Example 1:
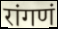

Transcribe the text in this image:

रांगणं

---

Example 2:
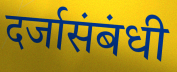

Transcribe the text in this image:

दर्जासंबंधी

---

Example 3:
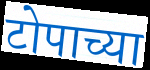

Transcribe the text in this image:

टोपाच्या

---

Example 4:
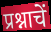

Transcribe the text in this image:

प्रश्नाचें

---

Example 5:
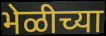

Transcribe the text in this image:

भेळीच्या